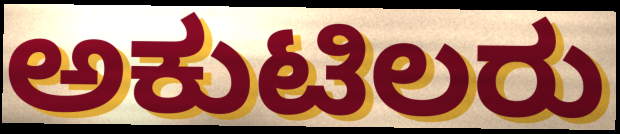
ಅಕುಟಿಲರು